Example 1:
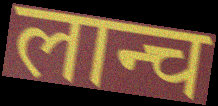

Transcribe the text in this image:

लान्‍च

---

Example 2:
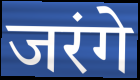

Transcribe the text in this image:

जरंगे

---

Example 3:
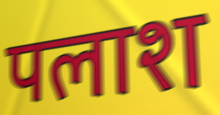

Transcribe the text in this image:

पलाश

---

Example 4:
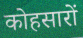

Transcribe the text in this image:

कोहसारों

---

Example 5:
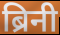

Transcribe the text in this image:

ब्रिनी